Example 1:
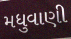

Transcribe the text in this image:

મધુવાણી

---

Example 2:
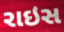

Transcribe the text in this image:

રાઇસ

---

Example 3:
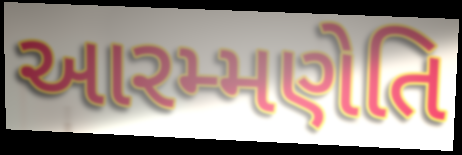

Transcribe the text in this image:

આરમ્મણેતિ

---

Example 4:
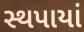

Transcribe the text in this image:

સ્થપાયાં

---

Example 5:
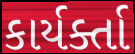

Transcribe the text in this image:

કાર્યર્ક્તા